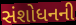
સંશોધનની